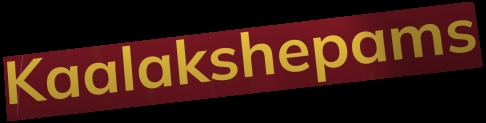
Kaalakshepams